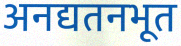
अनद्यतनभूत